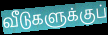
வீடுகளுக்குப்